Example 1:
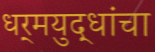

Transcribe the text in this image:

धर्मयुद्धांचा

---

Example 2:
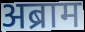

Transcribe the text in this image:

अब्राम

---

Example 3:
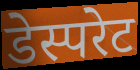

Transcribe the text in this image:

डेस्परेट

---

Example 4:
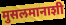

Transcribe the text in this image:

मुसलमानाशी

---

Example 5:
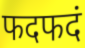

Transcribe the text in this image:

फदफदं